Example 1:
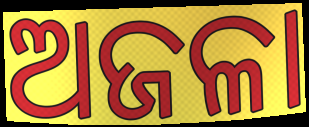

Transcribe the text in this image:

ଅଜଳା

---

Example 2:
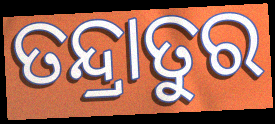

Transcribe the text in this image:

ତନ୍ଦ୍ରାତୁର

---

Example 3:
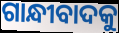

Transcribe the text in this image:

ଗାନ୍ଧୀବାଦକୁ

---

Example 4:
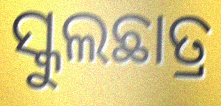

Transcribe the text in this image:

ସ୍କୁଲଛାତ୍ର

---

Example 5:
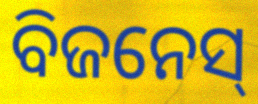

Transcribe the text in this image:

ବିଜନେସ୍